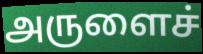
அருளைச்